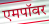
एमपॉवर